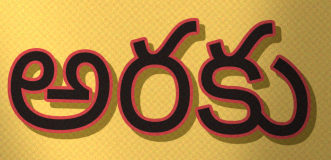
అరకు